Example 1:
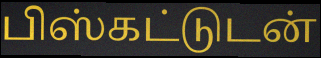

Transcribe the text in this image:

பிஸ்கட்டுடன்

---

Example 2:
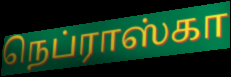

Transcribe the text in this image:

நெப்ராஸ்கா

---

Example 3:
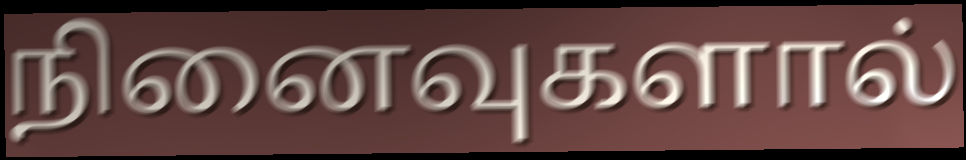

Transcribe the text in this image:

நினைவுகளால்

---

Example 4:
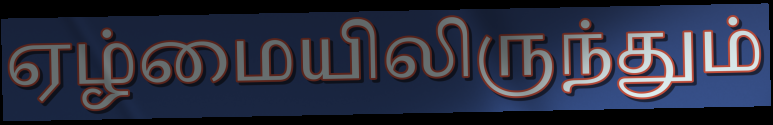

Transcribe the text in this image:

ஏழ்மையிலிருந்தும்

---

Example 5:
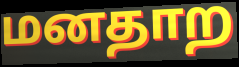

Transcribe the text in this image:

மனதாற